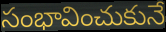
సంభావించుకునే